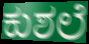
ಕುಶಲೆ